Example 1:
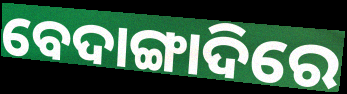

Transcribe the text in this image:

ବେଦାଙ୍ଗାଦିରେ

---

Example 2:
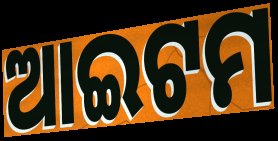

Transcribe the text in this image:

ଆଇଟମ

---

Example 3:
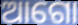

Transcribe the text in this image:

ଆଗୋ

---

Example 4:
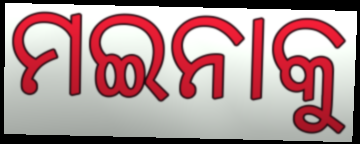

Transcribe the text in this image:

ମଇନାକୁ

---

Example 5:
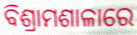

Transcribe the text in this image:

ବିଶ୍ରାମଶାଳାରେ